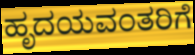
ಹೃದಯವಂತರಿಗೆ